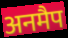
अनमैप